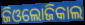
ଜିଓଲୋଜିକାଲ